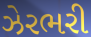
ઝેરભરી